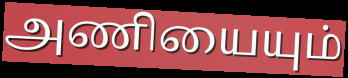
அணியையும்